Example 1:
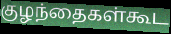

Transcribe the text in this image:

குழந்தைகள்கூட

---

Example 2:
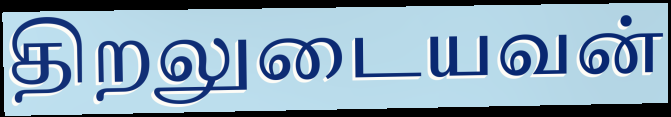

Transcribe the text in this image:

திறலுடையவன்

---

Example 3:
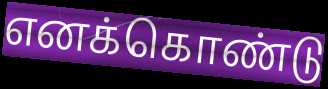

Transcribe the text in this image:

எனக்கொண்டு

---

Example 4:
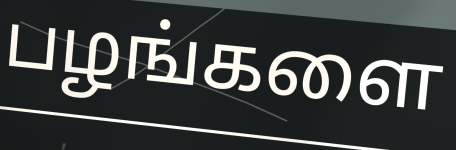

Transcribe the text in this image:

பழங்களை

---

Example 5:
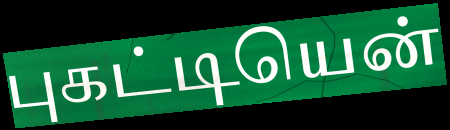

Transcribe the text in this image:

புகட்டியென்